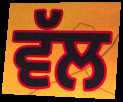
ਵੱਲ